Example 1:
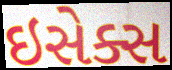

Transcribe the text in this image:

ઇસેક્સ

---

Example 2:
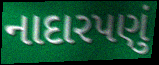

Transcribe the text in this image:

નાદારપણું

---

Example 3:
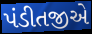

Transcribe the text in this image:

પંડીતજીએ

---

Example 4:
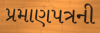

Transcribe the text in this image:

પ્રમાણપત્રની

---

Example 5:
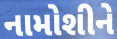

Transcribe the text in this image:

નામોશીને